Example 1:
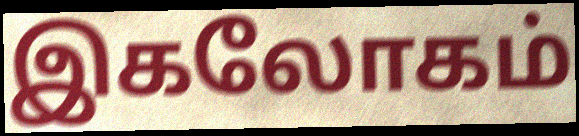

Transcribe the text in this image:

இகலோகம்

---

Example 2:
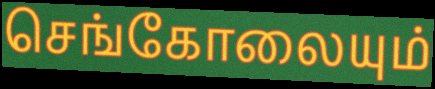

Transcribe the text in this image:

செங்கோலையும்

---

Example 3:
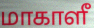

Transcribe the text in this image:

மாகாளீ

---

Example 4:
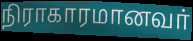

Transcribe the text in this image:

நிராகாரமானவர்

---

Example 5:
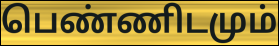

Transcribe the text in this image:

பெண்ணிடமும்